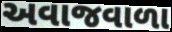
અવાજવાળા